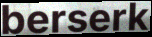
berserk